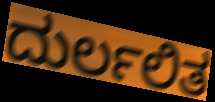
ದುರ್ಲಲಿತ